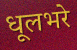
धूलभरे